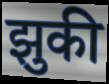
झुकी